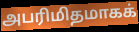
அபரிமிதமாகக்